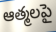
ఆత్మలపై